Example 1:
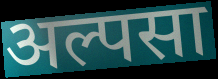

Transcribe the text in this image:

अल्पसा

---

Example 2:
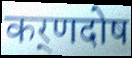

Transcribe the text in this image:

कर्णदोष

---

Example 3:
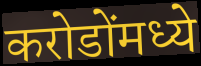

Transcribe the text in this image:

करोडोंमध्ये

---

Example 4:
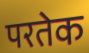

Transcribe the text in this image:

परतेक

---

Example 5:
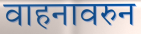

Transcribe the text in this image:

वाहनावरुन